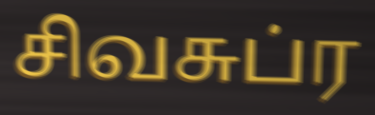
சிவசுப்ர